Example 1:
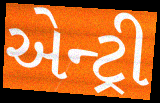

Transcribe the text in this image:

એન્‍ટ્રી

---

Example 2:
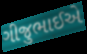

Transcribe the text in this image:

ગીજુભાઈએ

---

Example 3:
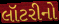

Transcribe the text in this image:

લૉટરીનો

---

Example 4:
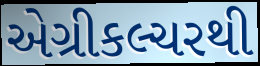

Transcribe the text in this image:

એગ્રીકલ્ચરથી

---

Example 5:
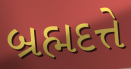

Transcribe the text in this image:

બ્રહ્મદત્તે